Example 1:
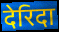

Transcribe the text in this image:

देरिदा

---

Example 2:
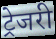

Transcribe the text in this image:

ट्रेजरी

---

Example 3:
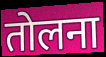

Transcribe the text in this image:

तोलना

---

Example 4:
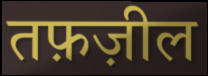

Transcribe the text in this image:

तफ़ज़ील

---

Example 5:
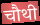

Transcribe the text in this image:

चौथी